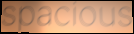
spacious